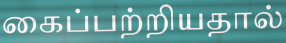
கைப்பற்றியதால்